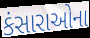
કંસારાઓના